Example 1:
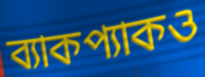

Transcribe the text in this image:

ব্যাকপ্যাকও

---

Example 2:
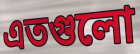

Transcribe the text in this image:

এতগুলো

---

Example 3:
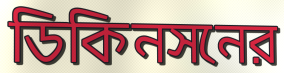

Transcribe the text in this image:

ডিকিনসনের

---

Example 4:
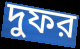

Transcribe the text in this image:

দুফর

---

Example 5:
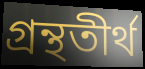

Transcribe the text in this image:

গ্রন্থতীর্থ